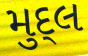
મુદ્લ